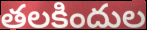
తలకిందుల